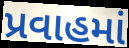
પ્રવાહમાં